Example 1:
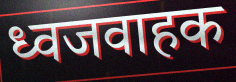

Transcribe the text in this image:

ध्वजवाहक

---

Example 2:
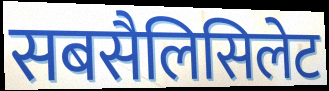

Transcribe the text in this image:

सबसैलिसिलेट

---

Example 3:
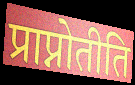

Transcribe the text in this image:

प्राप्नोतीति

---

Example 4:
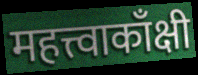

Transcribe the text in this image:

महत्त्वाकाँक्षी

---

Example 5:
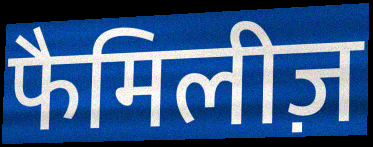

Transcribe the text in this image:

फैमिलीज़